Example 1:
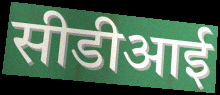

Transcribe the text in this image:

सीडीआई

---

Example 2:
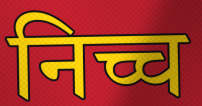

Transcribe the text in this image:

निच्च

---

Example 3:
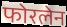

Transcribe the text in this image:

फोरलेन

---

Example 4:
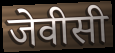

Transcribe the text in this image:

जेवीसी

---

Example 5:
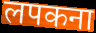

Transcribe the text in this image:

लपकना